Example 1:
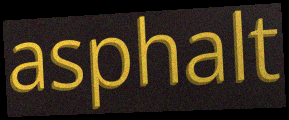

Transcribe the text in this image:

asphalt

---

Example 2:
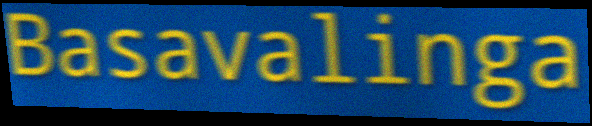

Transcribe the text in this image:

Basavalinga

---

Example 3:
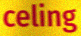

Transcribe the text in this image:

celing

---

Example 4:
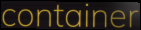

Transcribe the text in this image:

container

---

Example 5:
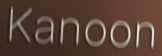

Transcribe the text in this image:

Kanoon